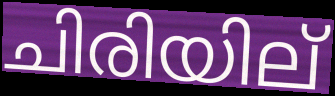
ചിരിയില്